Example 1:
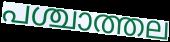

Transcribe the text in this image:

പശ്ചാത്തല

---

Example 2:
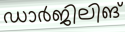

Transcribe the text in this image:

ഡാർജിലിങ്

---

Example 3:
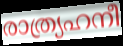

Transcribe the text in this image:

രാത്ര്യഹനീ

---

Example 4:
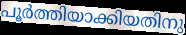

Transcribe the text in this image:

പൂർത്തിയാക്കിയതിനു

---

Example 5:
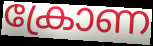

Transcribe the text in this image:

ക്രോണ